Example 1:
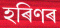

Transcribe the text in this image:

হৰিণৰ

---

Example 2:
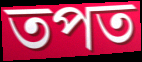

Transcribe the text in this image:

তপত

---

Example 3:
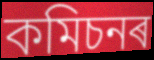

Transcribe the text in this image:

কমিচনৰ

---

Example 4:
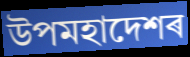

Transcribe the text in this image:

উপমহাদেশৰ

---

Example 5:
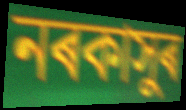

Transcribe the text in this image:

নৰকাসুৰ